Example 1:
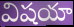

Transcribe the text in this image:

విషయా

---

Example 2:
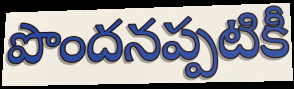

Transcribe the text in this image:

పొందనప్పటికీ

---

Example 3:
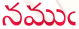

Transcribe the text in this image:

నముఁ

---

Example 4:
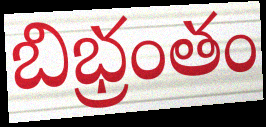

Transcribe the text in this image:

బిభ్రంతం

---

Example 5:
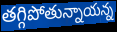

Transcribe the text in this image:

తగ్గిపోతున్నాయన్న